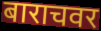
बाराचवर